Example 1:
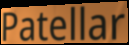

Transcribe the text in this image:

Patellar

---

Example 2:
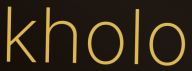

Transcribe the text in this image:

kholo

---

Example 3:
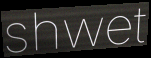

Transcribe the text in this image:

shwet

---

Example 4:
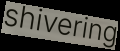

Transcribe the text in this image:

shivering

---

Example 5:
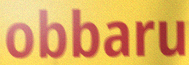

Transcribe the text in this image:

obbaru